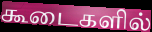
கூடைகளில்